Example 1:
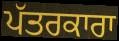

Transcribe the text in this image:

ਪੱਤਰਕਾਰਾ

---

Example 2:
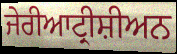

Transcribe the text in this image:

ਜੇਰੀਆਟ੍ਰੀਸ਼ੀਅਨ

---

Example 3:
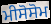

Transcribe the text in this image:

ਮੀਸੋਸੋਮ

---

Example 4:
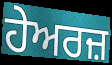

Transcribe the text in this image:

ਹੇਅਰਜ਼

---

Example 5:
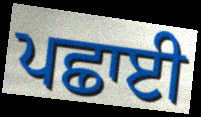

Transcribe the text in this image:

ਪਛਾਈ